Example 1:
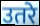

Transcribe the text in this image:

उतरे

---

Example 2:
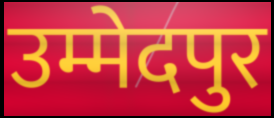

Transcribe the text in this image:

उम्मेदपुर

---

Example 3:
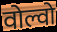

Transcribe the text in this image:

वोल्वो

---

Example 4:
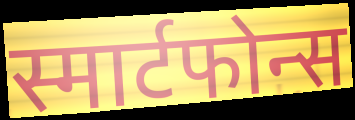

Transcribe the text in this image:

स्मार्टफोन्स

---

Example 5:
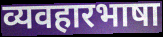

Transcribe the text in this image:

व्यवहारभाषा